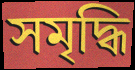
সমৃদ্ধি